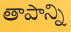
తాపాన్ని